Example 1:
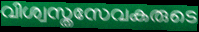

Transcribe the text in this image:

വിശ്വസ്തസേവകരുടെ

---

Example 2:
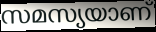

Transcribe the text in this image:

സമസ്യയാണ്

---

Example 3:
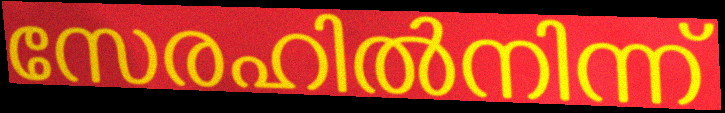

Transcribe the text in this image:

സേരഹിൽനിന്ന്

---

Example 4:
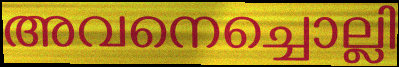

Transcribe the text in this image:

അവനെച്ചൊല്ലി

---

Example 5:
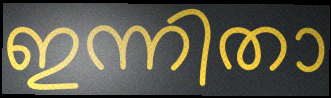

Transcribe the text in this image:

ഇന്നിതാ